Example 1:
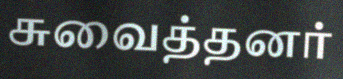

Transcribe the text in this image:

சுவைத்தனர்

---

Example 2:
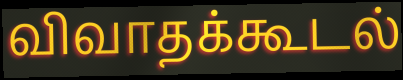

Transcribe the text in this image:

விவாதக்கூடல்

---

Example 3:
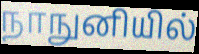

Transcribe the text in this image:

நாநுனியில்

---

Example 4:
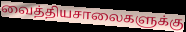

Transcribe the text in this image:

வைத்தியசாலைகளுக்கு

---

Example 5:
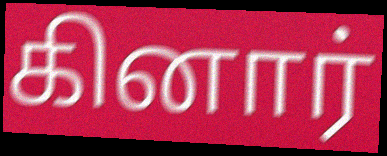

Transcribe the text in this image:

கினார்